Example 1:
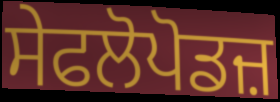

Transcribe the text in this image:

ਸੇਫਲੋਪੋਡਜ਼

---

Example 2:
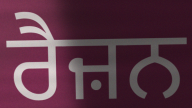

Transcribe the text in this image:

ਰੈਜ਼ਨ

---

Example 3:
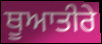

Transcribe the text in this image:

ਥੂਆਤੀਰੇ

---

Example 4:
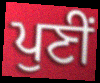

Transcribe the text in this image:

ਪੁਣੀਂ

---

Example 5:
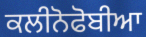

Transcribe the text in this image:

ਕਲੀਨੋਫੋਬੀਆ